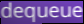
dequeue